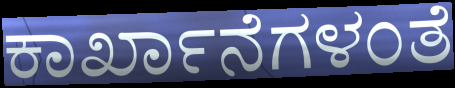
ಕಾರ್ಖಾನೆಗಳಂತೆ